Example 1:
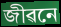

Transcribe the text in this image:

জীৱনে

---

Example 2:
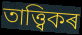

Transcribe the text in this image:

তাত্ত্বিকৰ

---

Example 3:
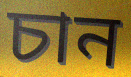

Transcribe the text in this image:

চান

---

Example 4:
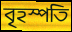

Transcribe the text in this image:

বৃহস্পতি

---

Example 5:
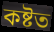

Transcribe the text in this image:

কষ্টত